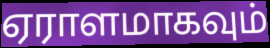
ஏராளமாகவும்